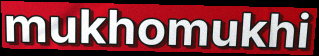
mukhomukhi